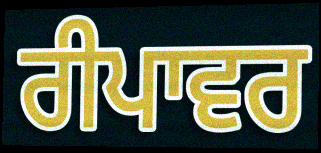
ਰੀਪਾਵਰ